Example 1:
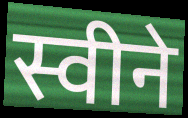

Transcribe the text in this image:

स्वीने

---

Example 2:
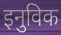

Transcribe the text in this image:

इनुविक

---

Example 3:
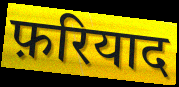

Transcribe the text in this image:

फ़रियाद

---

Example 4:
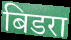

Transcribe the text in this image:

बिडरा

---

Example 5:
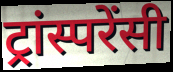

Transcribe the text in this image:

ट्रांस्परेंसी